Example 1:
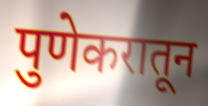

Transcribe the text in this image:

पुणेकरातून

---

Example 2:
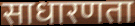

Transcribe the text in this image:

साधारणता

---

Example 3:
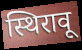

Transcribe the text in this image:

स्थिरावू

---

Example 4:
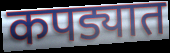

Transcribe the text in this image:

कपड्यात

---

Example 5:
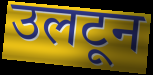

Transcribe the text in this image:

उलटून